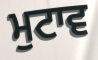
ਮੁਟਾਵ